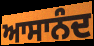
ਆਸਾਨੰਦ